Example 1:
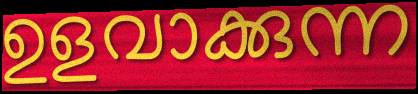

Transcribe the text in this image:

ഉളവാക്കുന്ന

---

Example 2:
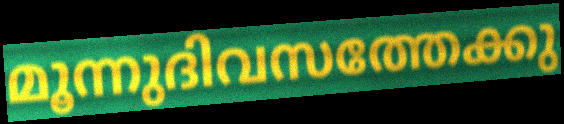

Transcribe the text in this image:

മൂന്നുദിവസത്തേക്കു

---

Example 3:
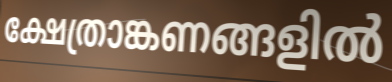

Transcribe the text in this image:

ക്ഷേത്രാങ്കണങ്ങളിൽ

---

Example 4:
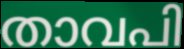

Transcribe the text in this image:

താവപി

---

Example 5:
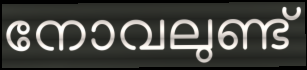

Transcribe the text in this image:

നോവലുണ്ട്